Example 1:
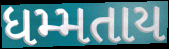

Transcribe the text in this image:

ધમ્મતાય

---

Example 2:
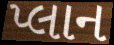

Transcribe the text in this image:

પ્લાન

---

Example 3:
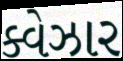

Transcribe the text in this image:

ક્વેઝાર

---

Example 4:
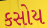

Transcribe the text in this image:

કસોય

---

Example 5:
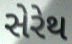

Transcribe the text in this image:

સેરેથ